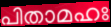
പിതാമഹഃ